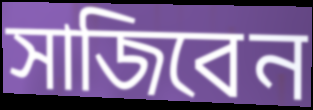
সাজিবেন